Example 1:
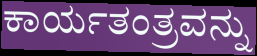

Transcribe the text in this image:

ಕಾರ್ಯತಂತ್ರವನ್ನು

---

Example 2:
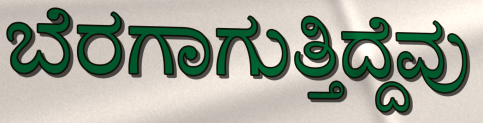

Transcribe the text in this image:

ಬೆರಗಾಗುತ್ತಿದ್ದೆವು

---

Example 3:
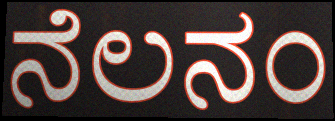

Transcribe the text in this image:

ನೆಲನಂ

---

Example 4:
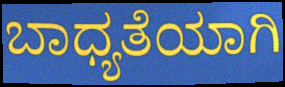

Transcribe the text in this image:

ಬಾಧ್ಯತೆಯಾಗಿ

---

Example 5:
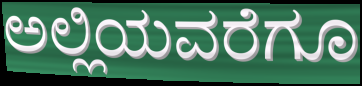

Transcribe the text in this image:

ಅಲ್ಲಿಯವರೆಗೂ